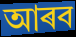
আৰব